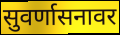
सुवर्णासनावर